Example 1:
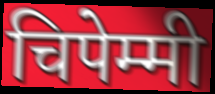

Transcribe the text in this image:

चिपेम्मी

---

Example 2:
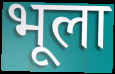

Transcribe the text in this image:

भूला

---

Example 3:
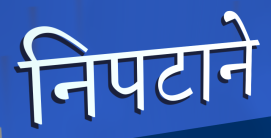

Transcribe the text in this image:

निपटाने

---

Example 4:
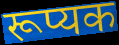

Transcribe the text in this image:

रूप्यक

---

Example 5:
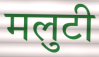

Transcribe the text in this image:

मलुटी